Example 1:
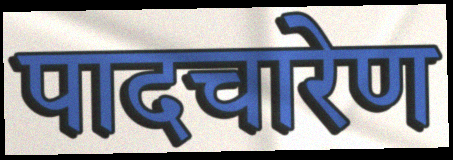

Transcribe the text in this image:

पादचारेण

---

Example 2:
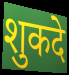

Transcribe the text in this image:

शुकदे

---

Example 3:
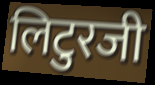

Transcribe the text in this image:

लिटुरजी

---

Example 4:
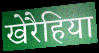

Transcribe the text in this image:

खेरैहिया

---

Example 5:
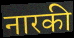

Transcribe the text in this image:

नारकी